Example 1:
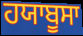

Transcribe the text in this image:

ਹਯਾਬੂਸਾ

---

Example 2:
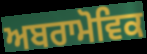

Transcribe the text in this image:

ਅਬਰਾਮੋਵਿਕ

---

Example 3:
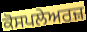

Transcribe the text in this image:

ਕੋਸਪਲੇਅਰਜ਼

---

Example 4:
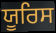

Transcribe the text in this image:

ਯੂਰਿਸ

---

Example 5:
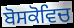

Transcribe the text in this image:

ਬੋਸਕੋਵਿਚ